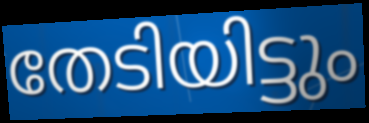
തേടിയിട്ടും